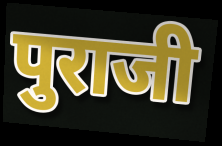
पुराजी